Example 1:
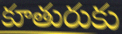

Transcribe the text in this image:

కూతురుకు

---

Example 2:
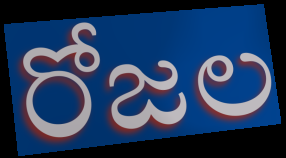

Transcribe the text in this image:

రోజల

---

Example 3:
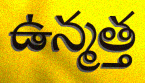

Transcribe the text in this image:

ఉన్మత్త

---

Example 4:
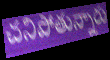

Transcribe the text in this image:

చనిపోతున్నారు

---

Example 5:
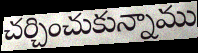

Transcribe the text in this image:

చర్చించుకున్నాము